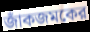
জাঁকজমকের